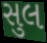
સુલ